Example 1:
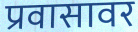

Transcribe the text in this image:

प्रवासावर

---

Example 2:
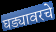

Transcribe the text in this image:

घड्यावरचे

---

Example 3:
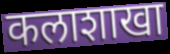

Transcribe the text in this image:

कलाशाखा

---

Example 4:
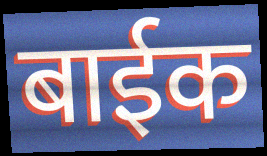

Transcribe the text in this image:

बाईक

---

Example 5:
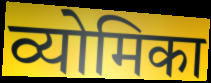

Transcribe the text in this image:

व्योमिका